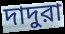
দাদুরা